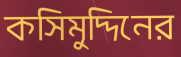
কসিমুদ্দিনের